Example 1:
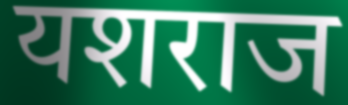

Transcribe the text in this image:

यशराज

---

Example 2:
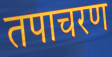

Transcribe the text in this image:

तपाचरण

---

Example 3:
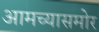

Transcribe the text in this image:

आमच्यासमोर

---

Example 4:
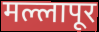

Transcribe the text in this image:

मल्लापूर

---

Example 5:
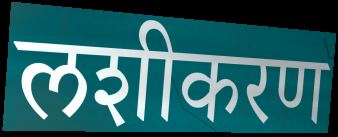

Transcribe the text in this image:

लशीकरण